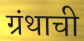
ग्रंथाची